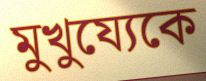
মুখুয্যেকে